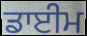
ਡਾਈਮ